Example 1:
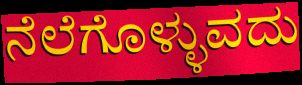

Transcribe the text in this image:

ನೆಲೆಗೊಳ್ಳುವದು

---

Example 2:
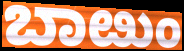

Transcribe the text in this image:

ಬಾೞುಂ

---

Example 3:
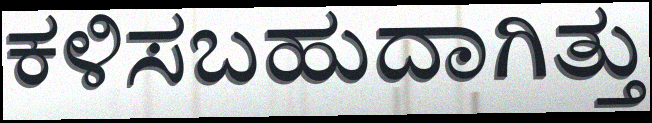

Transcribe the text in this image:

ಕಳಿಸಬಹುದಾಗಿತ್ತು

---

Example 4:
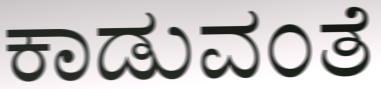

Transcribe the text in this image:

ಕಾಡುವಂತೆ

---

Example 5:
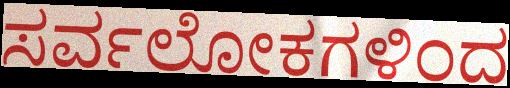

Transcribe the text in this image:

ಸರ್ವಲೋಕಗಳಿಂದ